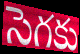
సెగకు